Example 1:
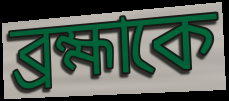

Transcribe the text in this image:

ব্রহ্মাকে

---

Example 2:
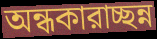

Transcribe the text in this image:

অন্ধকারাচ্ছন্ন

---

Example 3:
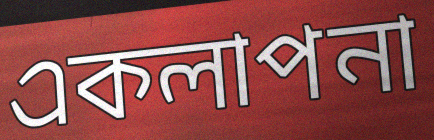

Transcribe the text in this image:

একলাপনা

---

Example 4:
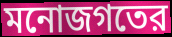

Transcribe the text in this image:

মনোজগতের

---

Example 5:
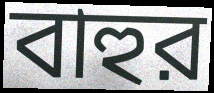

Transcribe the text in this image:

বাহুর